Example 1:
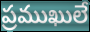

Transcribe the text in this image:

ప్రముఖులే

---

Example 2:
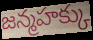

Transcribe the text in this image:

జన్మహక్కు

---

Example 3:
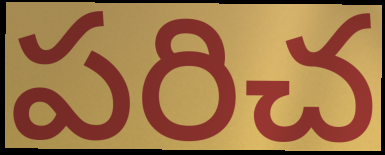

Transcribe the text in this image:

పరిచ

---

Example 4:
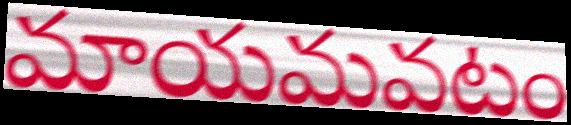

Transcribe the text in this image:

మాయమవటం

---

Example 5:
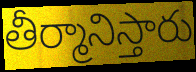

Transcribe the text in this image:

తీర్మానిస్తారు